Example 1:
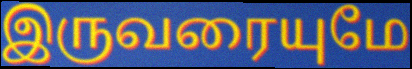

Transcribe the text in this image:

இருவரையுமே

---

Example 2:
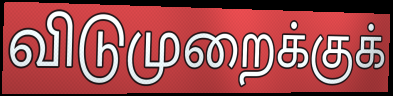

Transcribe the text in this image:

விடுமுறைக்குக்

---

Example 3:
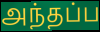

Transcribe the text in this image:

அந்தப்ப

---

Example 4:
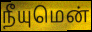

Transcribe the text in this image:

நீயுமென்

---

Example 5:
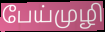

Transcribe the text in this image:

பேய்முழி